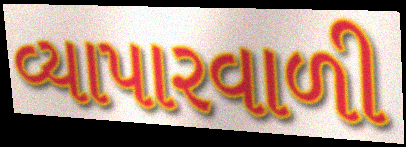
વ્યાપારવાળી